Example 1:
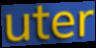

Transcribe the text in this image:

uter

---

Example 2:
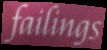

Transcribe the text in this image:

failings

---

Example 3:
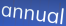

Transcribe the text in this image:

annual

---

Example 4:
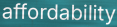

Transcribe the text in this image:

affordability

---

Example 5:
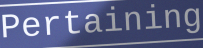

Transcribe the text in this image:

Pertaining